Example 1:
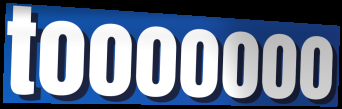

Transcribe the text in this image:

tooooooo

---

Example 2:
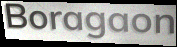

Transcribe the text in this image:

Boragaon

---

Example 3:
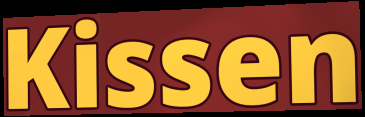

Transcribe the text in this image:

Kissen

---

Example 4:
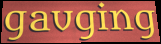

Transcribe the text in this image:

gauging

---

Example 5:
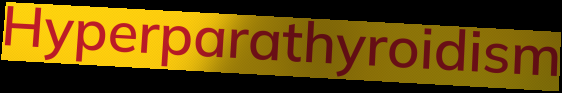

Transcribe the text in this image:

Hyperparathyroidism